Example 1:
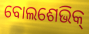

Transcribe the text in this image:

ବୋଲଶେଭିକ୍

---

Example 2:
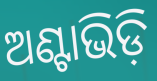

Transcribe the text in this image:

ଅଣ୍ଟାଭିଡ଼ି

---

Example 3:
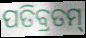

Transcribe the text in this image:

ପତିବ୍ରତମ୍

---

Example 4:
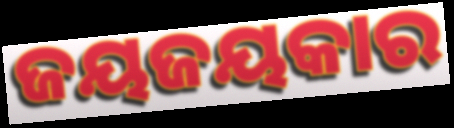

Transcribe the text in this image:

ଜୟଜୟକାର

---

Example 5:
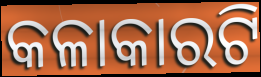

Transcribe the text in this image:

କଳାକାରଟି